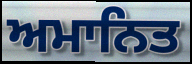
ਅਮਾਨਿਤ